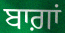
ਬਾਗ਼ਾਂ